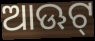
ଆଊଟ୍